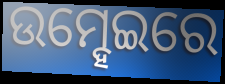
ଉମ୍ହେଇରେ